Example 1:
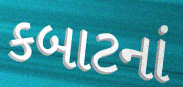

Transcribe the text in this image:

કબાટનાં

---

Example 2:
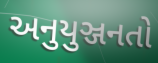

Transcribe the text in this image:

અનુયુઞ્જનતો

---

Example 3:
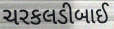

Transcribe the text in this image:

ચરકલડીબાઈ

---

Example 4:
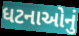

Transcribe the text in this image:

ધટનાઓનું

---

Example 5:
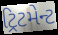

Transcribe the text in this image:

ટ્રિટમેન્ટ